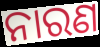
ନାରଣ